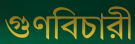
গুণবিচারী